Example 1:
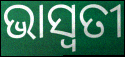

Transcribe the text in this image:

ଭାସ୍ଵତୀ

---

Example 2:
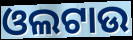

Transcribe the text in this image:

ଓଲଟାଉ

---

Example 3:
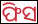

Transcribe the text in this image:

ଫିସ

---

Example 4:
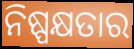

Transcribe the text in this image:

ନିଷ୍ପକ୍ଷତାର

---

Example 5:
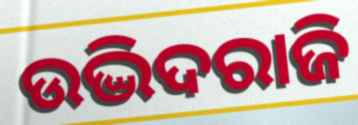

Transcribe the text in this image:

ଉଦ୍ଭିଦରାଜି